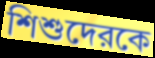
শিশুদেরকে